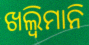
ଖଲ୍ୱିମାନି